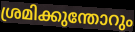
ശ്രമിക്കുന്തോറും